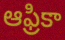
ఆఫ్రికా